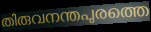
തിരുവനന്തപുരത്തെ